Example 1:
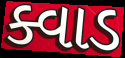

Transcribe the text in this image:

ક્વાડ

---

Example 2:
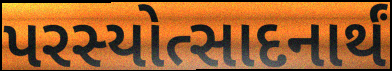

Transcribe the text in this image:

પરસ્યોત્સાદનાર્થં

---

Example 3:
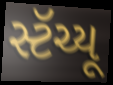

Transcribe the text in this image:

સ્ટૅચ્યૂ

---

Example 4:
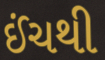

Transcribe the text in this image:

ઈંચથી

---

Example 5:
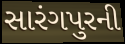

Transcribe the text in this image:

સારંગપુરની